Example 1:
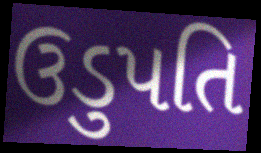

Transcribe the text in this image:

ઉડુપતિ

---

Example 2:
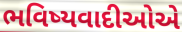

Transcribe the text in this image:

ભવિષ્યવાદીઓએ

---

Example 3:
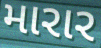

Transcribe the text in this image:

મારાર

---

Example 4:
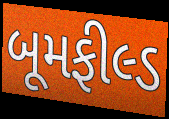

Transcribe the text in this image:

બૂમફીલ્ડ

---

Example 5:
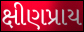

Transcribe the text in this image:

ક્ષીણપ્રાય